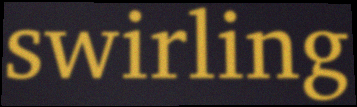
swirling